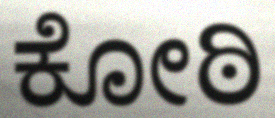
ಕೋಠಿ